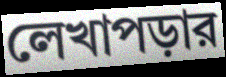
লেখাপড়ার